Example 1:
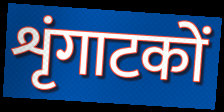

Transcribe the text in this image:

शृंगाटकों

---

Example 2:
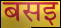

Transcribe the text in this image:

बसइ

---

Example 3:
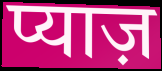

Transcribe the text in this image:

प्याज़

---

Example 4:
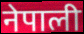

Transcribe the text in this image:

नेपाली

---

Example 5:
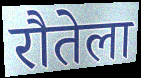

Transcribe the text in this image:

रौतेला